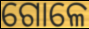
ଗୋଳେ